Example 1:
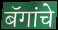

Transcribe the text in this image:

बॅगांचे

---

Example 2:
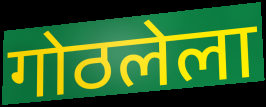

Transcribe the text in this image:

गोठलेला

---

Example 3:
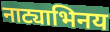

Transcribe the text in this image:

नाट्याभिनय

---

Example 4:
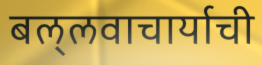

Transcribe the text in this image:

बल्लवाचार्याची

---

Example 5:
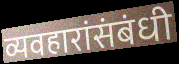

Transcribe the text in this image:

व्यवहारांसंबंधी